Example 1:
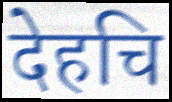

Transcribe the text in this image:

देहचि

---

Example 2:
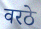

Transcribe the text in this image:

वरठे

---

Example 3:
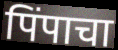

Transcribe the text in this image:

पिंपाचा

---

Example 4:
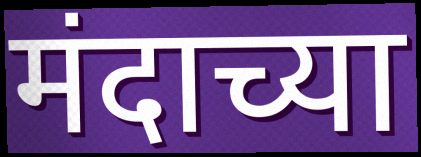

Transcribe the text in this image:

मंदाच्या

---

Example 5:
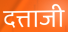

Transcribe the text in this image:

दत्ताजी